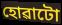
হোৱাটো